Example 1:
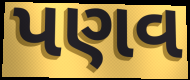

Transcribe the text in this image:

પણવ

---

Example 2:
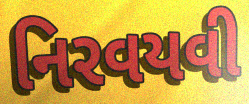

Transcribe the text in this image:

નિરવયવી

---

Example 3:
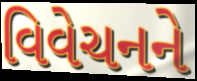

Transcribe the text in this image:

વિવેચનને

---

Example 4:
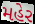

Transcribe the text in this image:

મહેર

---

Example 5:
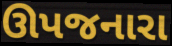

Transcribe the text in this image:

ઊપજનારા